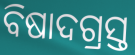
ବିଷାଦଗ୍ରସ୍ତ